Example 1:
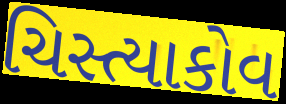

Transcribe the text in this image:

ચિસ્ત્યાકોવ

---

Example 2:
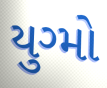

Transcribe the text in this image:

યુગ્મો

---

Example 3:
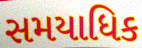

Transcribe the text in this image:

સમયાધિક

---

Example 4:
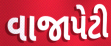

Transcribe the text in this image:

વાજાપેટી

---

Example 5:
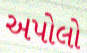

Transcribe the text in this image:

અપોલો